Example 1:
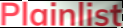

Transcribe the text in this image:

Plainlist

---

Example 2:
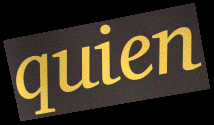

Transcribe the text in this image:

quien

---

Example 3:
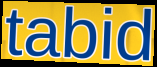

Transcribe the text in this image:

tabid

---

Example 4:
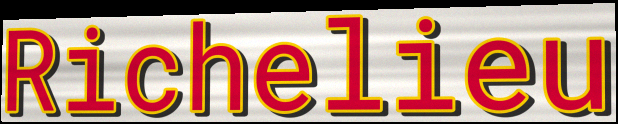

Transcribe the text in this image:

Richelieu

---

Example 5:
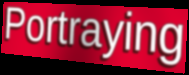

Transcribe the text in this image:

Portraying